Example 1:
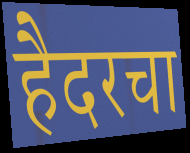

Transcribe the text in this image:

हैदरचा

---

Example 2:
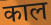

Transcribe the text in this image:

काल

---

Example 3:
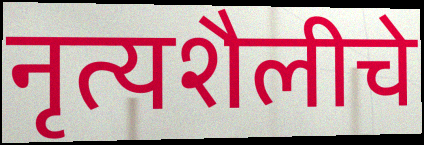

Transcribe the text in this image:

नृत्यशैलीचे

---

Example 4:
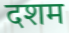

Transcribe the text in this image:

दशम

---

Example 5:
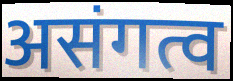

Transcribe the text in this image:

असंगत्व